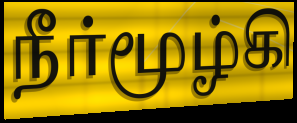
நீர்மூழ்கி